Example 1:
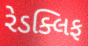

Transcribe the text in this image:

રેડક્લિફ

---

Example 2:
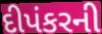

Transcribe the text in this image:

દીપંકરની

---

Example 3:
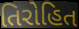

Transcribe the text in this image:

તિરોહિત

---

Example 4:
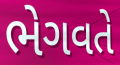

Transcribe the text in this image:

ભેગવતે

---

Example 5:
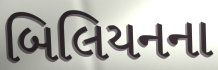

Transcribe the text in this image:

બિલિયનના